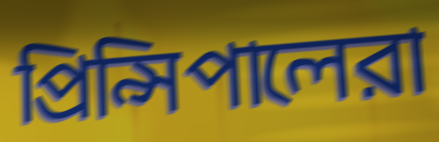
প্রিন্সিপালেরা